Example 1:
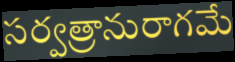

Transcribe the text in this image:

సర్వత్రానురాగమే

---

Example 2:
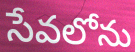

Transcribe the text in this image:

సేవలోను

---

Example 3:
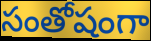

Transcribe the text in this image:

సంతోషంగా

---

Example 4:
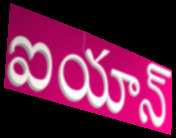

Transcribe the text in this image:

ఐయాన్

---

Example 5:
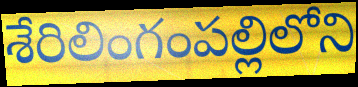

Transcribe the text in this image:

శేరిలింగంపల్లిలోని